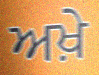
ਅਖ਼ੇ